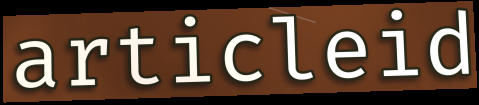
articleid